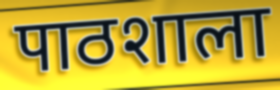
पाठशाला